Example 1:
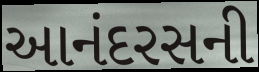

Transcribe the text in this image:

આનંદરસની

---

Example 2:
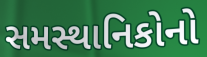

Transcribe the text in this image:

સમસ્થાનિકોનો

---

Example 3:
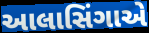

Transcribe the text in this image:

આલાસિંગાએ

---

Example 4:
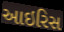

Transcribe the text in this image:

આઇરિસ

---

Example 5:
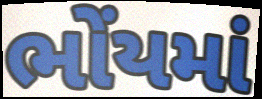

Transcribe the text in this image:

ભોંયમાં